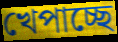
খেপাচ্ছে